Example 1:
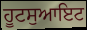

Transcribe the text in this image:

ਹੂਟਸੁਆਇਟ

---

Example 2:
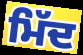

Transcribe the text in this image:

ਮਿੱਦ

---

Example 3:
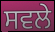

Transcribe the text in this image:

ਸਵਲੇ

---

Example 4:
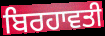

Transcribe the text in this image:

ਬਿਰਹਾਵਤੀ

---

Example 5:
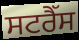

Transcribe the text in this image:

ਸਟਰੈੱਸ